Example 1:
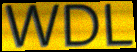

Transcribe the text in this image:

WDL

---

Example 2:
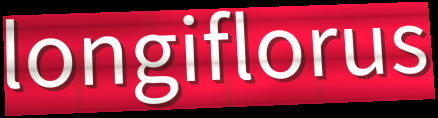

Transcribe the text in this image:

longiflorus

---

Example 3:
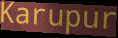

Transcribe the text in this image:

Karupur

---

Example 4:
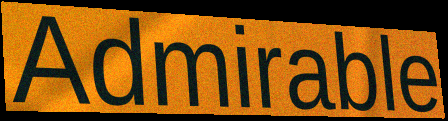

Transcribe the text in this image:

Admirable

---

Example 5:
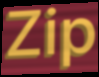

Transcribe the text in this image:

Zip